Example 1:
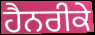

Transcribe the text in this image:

ਹੈਨਰੀਕੇ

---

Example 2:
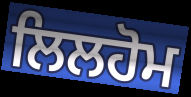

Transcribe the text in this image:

ਲਿਲਹੋਮ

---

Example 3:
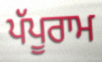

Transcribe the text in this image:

ਪੱਪੂਰਾਮ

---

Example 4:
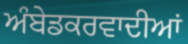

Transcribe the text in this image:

ਅੰਬੇਡਕਰਵਾਦੀਆਂ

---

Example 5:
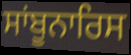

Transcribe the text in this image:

ਸਾਂਬੂਨਾਰਿਸ